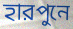
হারপুনে